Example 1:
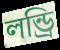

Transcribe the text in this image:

লন্ড্রি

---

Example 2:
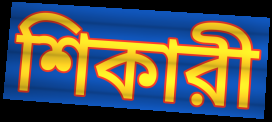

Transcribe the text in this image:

শিকারী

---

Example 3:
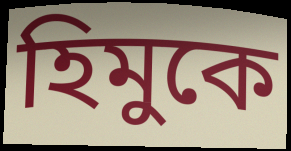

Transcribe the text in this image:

হিমুকে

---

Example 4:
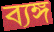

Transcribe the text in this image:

ব্যঙ্গ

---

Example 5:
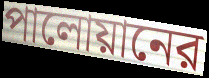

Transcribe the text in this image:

পালোয়ানের